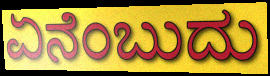
ಏನೆಂಬುದು